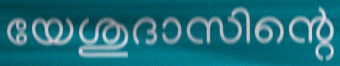
യേശുദാസിന്റെ